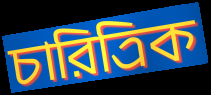
চারিত্রিক